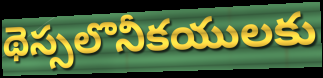
థెస్సలొనీకయులకు